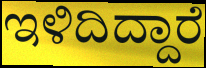
ಇಳಿದಿದ್ದಾರೆ